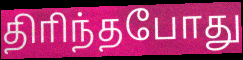
திரிந்தபோது